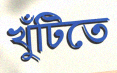
খুঁটিতে